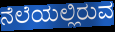
ನೆಲೆಯಲ್ಲಿರುವ